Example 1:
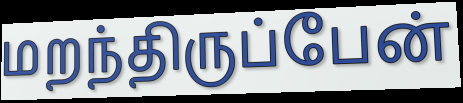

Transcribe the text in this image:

மறந்திருப்பேன்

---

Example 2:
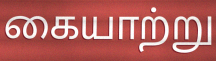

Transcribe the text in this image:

கையாற்று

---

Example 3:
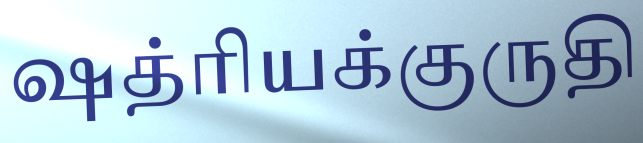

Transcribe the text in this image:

ஷத்ரியக்குருதி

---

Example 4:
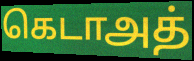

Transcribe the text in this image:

கெடாஅத்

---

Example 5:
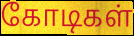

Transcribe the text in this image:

கோடிகள்